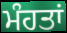
ਮੰਹਤਾਂ